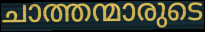
ചാത്തന്മാരുടെ